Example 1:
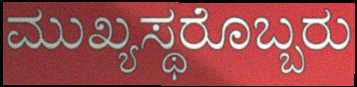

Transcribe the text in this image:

ಮುಖ್ಯಸ್ಥರೊಬ್ಬರು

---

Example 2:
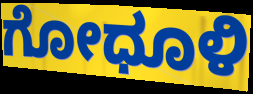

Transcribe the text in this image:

ಗೋಧೂಳಿ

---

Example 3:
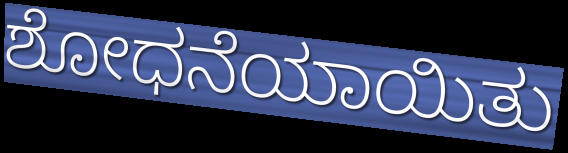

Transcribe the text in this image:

ಶೋಧನೆಯಾಯಿತು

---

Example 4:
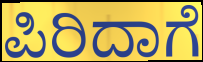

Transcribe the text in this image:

ಪಿರಿದಾಗೆ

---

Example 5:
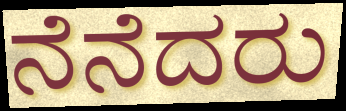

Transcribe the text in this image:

ನೆನೆದರು